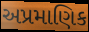
અપ્રમાણિક